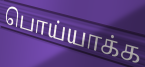
பொய்யாக்க